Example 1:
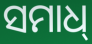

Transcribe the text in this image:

ସମାଧ୍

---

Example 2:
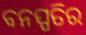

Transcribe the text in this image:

ବନସ୍ପତିର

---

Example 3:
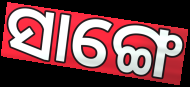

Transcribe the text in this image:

ସାଙ୍ଗେ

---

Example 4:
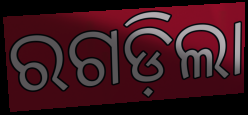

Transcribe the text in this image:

ରଗଡ଼ିଲା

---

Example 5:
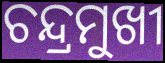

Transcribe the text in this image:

ଚନ୍ଦ୍ରମୁଖୀ